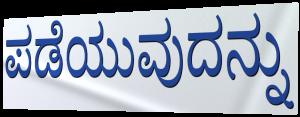
ಪಡೆಯುವುದನ್ನು